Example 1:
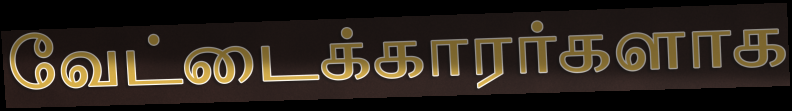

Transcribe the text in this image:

வேட்டைக்காரர்களாக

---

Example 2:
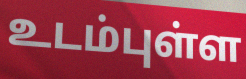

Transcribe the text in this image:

உடம்புள்ள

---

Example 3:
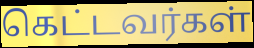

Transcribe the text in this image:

கெட்டவர்கள்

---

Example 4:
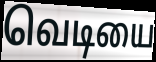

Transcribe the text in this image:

வெடியை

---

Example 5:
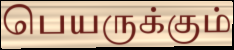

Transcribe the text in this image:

பெயருக்கும்